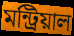
মন্ট্রিয়াল